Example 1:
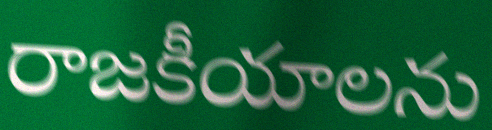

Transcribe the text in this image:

రాజకీయాలను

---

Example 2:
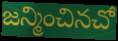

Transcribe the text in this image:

జన్మించినచో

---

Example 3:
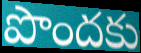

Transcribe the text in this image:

పొందకు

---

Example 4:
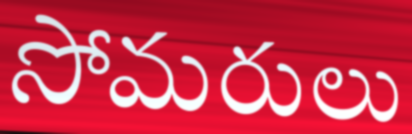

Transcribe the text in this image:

సోమరులు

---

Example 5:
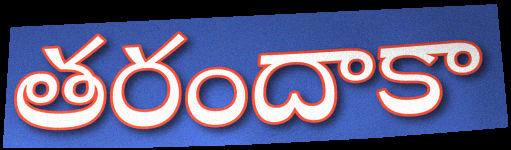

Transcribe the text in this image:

తరందాకా